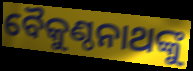
ବୈକୁଣ୍ଠନାଥଙ୍କୁ